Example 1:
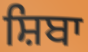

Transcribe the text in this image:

ਸ਼ਿਬਾ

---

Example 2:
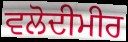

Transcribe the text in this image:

ਵਲੋਦੀਮੀਰ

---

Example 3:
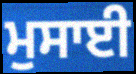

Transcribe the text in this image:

ਮੁਸਾਈ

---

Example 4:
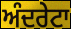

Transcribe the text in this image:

ਅੰਦਰੇਟਾ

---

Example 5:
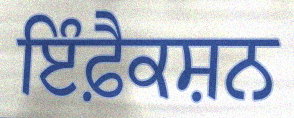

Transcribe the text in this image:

ਇੰਫ਼ੈਕਸ਼ਨ